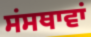
ਸਂਸਥਾਵਾਂ